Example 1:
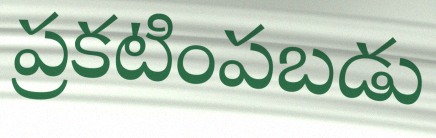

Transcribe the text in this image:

ప్రకటింపబడు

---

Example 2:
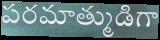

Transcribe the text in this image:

పరమాత్ముడిగా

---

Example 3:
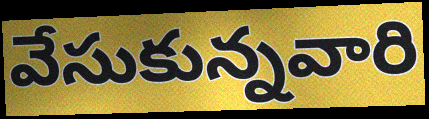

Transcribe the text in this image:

వేసుకున్నవారి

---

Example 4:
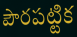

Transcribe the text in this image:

పౌరపట్టిక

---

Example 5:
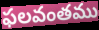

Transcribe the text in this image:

ఫలవంతము